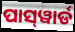
ପାସ୍‌ୱାର୍ଡ